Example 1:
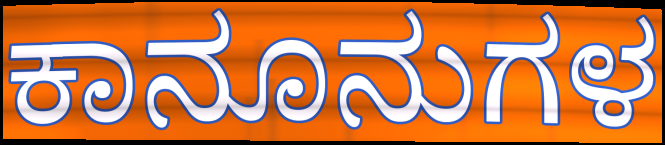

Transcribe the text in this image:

ಕಾನೂನುಗಳ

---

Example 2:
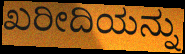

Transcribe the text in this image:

ಖರೀದಿಯನ್ನು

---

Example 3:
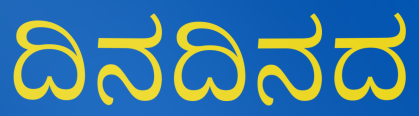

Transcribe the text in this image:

ದಿನದಿನದ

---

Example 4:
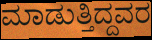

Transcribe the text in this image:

ಮಾಡುತ್ತಿದ್ದವರ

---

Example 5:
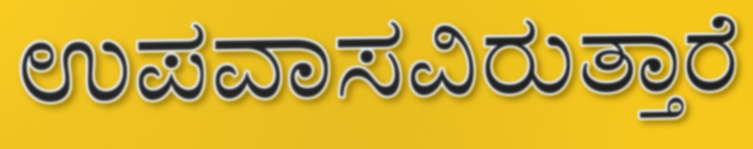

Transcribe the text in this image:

ಉಪವಾಸವಿರುತ್ತಾರೆ